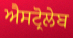
ਐਸਟ੍ਰੋਲੇਬ